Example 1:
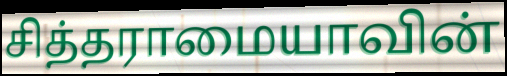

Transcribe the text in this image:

சித்தராமையாவின்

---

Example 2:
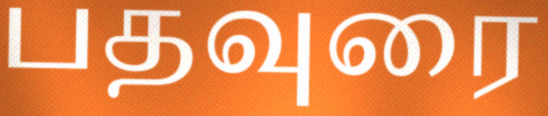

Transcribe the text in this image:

பதவுரை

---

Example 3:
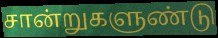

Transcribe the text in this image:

சான்றுகளுண்டு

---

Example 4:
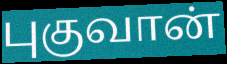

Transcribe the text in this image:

புகுவான்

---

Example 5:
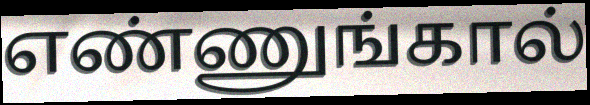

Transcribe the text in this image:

எண்ணுங்கால்